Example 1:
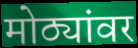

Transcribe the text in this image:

मोठ्यांवर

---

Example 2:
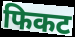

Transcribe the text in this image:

फिकट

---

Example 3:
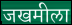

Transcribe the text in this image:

जखमीला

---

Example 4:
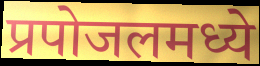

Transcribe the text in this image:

प्रपोजलमध्ये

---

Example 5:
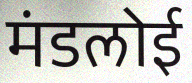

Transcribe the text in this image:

मंडलोई